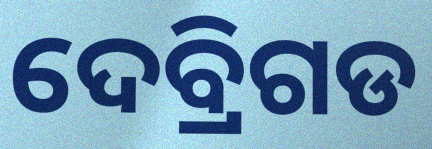
ଦେବ୍ରିଗଡ